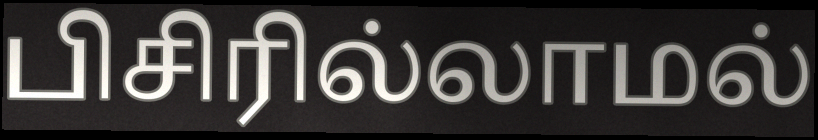
பிசிரில்லாமல்